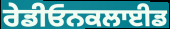
ਰੇਡੀਓਨਕਲਾਈਡ